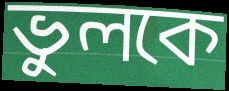
ভুলকে